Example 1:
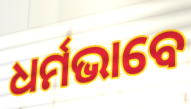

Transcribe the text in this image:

ଧର୍ମଭାବେ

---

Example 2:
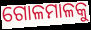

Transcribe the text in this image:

ଗୋଳମାଳକୁ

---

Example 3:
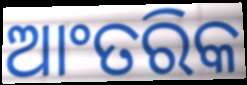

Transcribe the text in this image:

ଆଂତରିକ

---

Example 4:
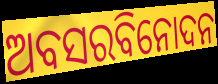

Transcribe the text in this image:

ଅବସରବିନୋଦନ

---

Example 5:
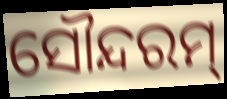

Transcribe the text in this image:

ସୌନ୍ଦରମ୍